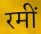
रमीं